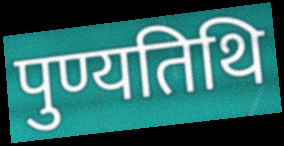
पुण्यतिथि